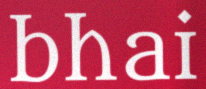
bhai